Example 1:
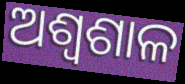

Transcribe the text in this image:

ଅଶ୍ୱଶାଳ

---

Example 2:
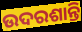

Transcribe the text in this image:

ଉଦରଶାନ୍ତି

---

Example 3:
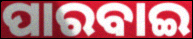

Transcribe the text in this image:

ପାରବାଇ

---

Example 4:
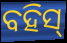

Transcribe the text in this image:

ବହିସ୍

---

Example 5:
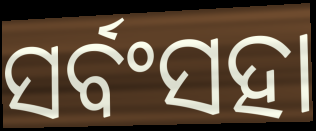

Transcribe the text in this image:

ସର୍ବଂସହା